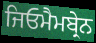
ਜਿਓਮੈਮਬ੍ਰੇਨ